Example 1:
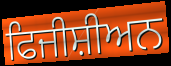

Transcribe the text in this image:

ਫਿਜੀਸ਼ੀਅਨ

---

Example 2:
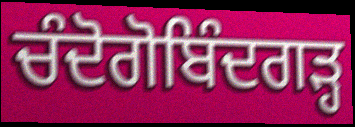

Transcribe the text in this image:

ਚੰਦੋਗੋਬਿੰਦਗੜ੍ਹ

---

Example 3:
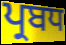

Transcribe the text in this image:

ਪ੍ਰਬਧ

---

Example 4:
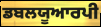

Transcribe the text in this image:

ਡਬਲਯੂਆਰਪੀ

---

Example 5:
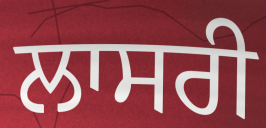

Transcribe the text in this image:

ਲਾਸਰੀ